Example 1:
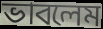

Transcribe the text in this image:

ভাবলেম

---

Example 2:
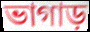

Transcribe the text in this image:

ভাগাড়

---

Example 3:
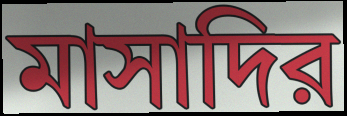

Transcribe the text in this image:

মাসাদির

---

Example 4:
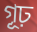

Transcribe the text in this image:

গূঢ়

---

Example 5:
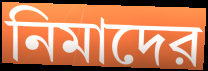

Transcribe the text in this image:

নিমাদের